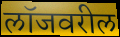
लॉजवरील